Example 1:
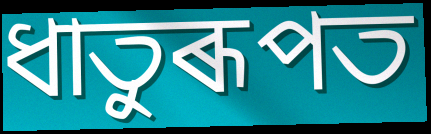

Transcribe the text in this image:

ধাতুৰূপত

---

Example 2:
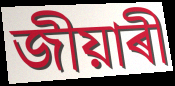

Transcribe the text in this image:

জীয়াৰী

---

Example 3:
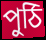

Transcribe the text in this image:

পুঠি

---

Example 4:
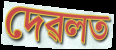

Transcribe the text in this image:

দেৱলত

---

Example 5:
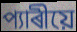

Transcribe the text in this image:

প্যাৰীয়ে